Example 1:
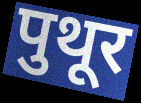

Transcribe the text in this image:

पुथूर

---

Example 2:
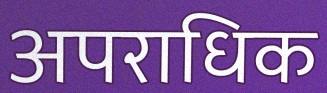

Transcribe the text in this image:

अपराधिक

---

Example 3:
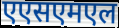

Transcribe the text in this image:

एएसएमएल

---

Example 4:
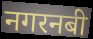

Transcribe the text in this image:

नगरनबी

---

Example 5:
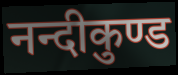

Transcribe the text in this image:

नन्दीकुण्ड